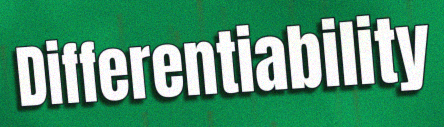
Differentiability